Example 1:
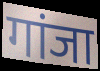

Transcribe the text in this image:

गांजा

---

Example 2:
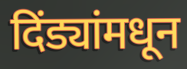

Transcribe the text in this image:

दिंड्यांमधून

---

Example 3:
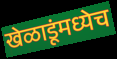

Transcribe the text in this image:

खेळाडूंमध्येच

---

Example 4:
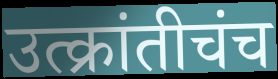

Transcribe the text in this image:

उत्क्रांतीचंच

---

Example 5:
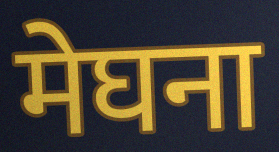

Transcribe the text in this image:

मेघना